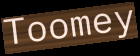
Toomey